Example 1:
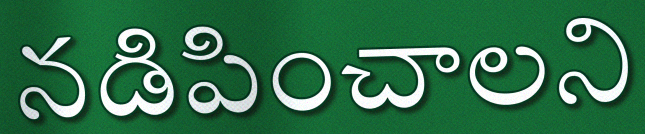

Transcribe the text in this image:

నడిపించాలని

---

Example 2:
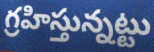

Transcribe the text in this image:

గ్రహిస్తున్నట్టు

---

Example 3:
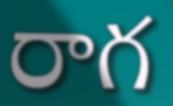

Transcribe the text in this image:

రాగ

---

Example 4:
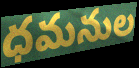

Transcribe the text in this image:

ధమనుల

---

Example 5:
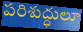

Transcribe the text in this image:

పరిశుద్ధులూ